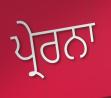
ਪ੍ਰੇਰਨਾ